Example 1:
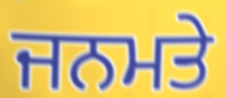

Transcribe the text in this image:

ਜਨਮਤੇ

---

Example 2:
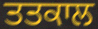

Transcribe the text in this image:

ਤਤਕਾਲ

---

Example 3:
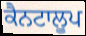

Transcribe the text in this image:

ਕੈਨਟਾਲੂਪ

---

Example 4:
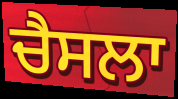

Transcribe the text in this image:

ਚੈਸਲਾ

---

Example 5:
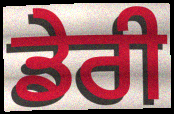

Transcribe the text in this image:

ਡੇਰੀ